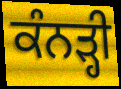
ਕੰਨੜ੍ਹੀ